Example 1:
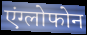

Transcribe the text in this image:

एंग्लोफोन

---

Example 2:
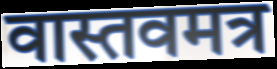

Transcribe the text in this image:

वास्तवमत्र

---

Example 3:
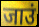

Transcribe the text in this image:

जाउं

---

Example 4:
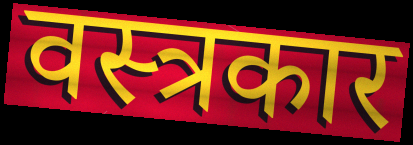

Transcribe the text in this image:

वस्त्रकार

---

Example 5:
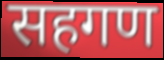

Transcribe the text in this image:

सहगण